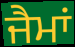
ਜੈਮਾਂ